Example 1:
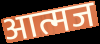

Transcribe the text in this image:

आत्मज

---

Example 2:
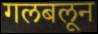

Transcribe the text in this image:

गलबलून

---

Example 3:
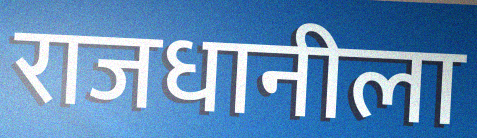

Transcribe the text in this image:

राजधानीला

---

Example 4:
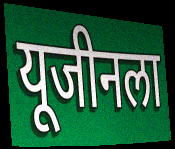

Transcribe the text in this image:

यूजीनला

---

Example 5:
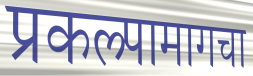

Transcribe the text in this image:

प्रकल्पामागचा